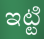
ఇట్టి